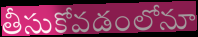
తీసుకోవడంలోనూ